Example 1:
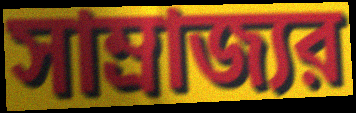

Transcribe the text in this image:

সাম্রাজ্যর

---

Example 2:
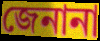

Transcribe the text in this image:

জেনানা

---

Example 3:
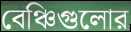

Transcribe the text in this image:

বেঞ্চিগুলোর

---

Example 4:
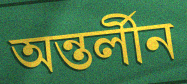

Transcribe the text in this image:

অন্তর্লীন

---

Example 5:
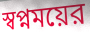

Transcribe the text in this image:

স্বপ্নময়ের